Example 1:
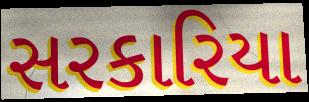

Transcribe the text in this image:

સરકારિયા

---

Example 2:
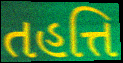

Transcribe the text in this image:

તહત્તિ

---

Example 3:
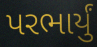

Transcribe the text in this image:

પરભાર્યું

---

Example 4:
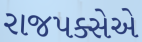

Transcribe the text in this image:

રાજપક્સેએ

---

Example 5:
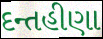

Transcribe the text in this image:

દન્તહીણા